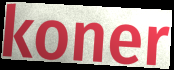
koner